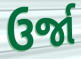
ઉર્જા